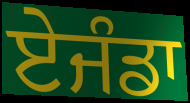
ਏਜੰਡਾ